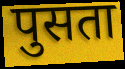
पुसता